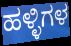
ಹಳ್ಳಿಗಳ